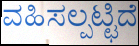
ವಹಿಸಲ್ಪಟ್ಟಿದೆ